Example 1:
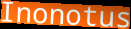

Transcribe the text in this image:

Inonotus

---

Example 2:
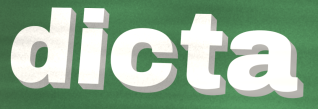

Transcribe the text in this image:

dicta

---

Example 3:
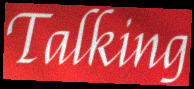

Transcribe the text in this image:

Talking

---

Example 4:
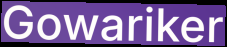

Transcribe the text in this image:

Gowariker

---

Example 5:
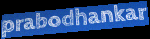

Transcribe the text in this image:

prabodhankar